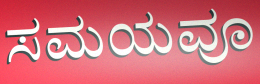
ಸಮಯವೂ